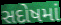
સદોષમાં